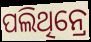
ପଲିଥିନ୍ରେ